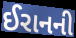
ઈરાનની